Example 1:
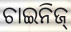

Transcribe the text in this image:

ଚାଇନିଜ୍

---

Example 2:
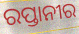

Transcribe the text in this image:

ରପ୍ତାନୀର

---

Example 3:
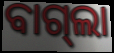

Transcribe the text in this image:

ବାଗ୍‍ଲା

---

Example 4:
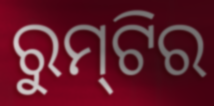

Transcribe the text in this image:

ରୁମ୍‌ଟିର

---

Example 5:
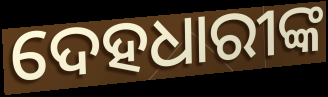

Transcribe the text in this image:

ଦେହଧାରୀଙ୍କ